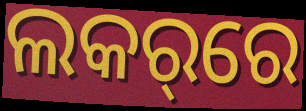
ଲକର୍‌ରେ